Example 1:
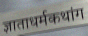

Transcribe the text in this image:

ज्ञाताधर्मकथांग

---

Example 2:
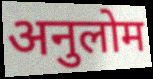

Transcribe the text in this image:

अनुलोम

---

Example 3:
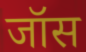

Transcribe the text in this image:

जॉस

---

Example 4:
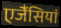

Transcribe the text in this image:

एजैंसियां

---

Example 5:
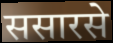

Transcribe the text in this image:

ससारसे